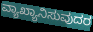
ವ್ಯಾಖ್ಯಾನಿಸುವುದರ